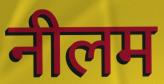
नीलम